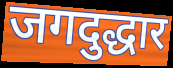
जगदुद्धार